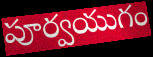
పూర్వయుగం